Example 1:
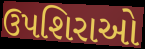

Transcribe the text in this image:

ઉપશિરાઓ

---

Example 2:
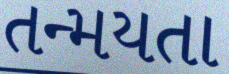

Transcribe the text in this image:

તન્મયતા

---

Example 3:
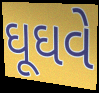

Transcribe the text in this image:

ઘૂઘવે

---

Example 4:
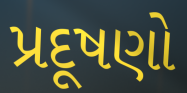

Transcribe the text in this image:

પ્રદૂષણો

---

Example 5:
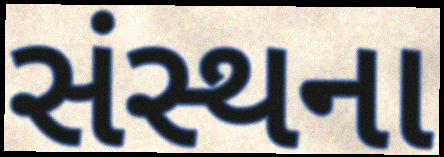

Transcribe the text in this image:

સંસ્થના